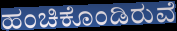
ಹಂಚಿಕೊಂಡಿರುವೆ